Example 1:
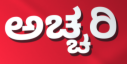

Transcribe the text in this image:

ಅಚ್ಚರಿ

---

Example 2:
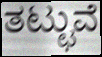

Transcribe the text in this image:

ತಟ್ಟುವೆ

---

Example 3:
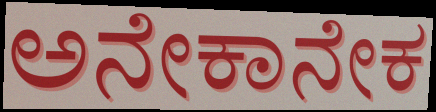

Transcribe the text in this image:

ಅನೇಕಾನೇಕ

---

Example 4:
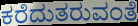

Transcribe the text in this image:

ಕರೆದುತರುವಂತೆ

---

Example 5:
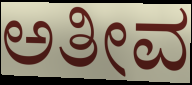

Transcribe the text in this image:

ಅತೀವ